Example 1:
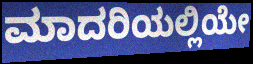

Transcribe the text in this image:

ಮಾದರಿಯಲ್ಲಿಯೇ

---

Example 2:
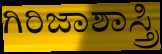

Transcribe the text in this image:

ಗಿರಿಜಾಶಾಸ್ತ್ರಿ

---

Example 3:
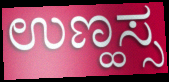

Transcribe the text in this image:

ಉಣ್ಹಸ್ಸ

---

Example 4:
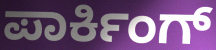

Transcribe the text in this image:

ಪಾರ್ಕಿಂಗ್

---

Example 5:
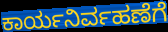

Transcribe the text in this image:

ಕಾರ್ಯನಿರ್ವಹಣೆಗೆ